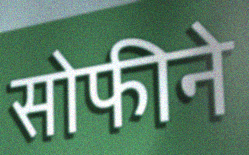
सोफीने